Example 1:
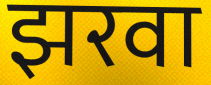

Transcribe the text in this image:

झरवा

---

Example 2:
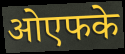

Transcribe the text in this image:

ओएफके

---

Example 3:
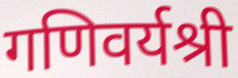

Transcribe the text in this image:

गणिवर्यश्री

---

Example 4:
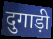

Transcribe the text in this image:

दुगाड़ी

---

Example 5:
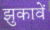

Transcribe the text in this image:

झुकावें